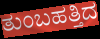
ತುಂಬಹತ್ತಿದ